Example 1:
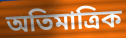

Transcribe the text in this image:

অতিমাত্রিক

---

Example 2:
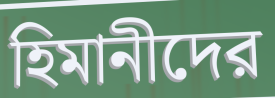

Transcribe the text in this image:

হিমানীদের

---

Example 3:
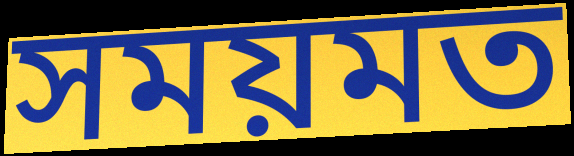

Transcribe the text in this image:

সময়মত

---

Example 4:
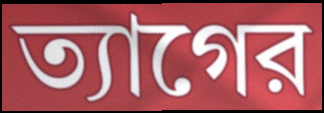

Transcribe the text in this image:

ত্যাগের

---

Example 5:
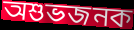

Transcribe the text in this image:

অশুভজনক